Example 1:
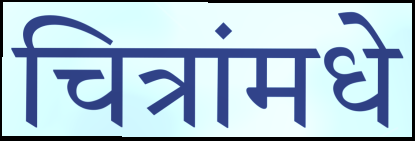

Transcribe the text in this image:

चित्रांमधे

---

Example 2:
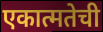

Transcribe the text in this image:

एकात्मतेची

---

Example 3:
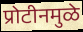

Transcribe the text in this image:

प्रोटीनमुळे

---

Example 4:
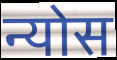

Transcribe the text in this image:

न्योस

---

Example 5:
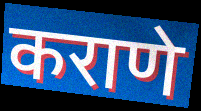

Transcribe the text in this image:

कराणे